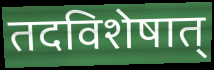
तदविशेषात्